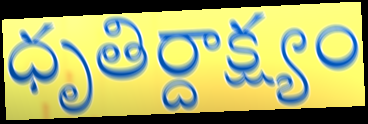
ధృతిర్దాక్ష్యం